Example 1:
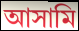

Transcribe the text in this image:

আসামি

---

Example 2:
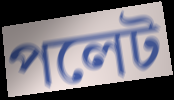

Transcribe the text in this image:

পলেট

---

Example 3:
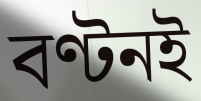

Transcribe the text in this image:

বণ্টনই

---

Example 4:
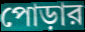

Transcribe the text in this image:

পোড়ার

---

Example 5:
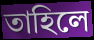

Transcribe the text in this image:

তাহিলে